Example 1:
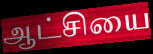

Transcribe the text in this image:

ஆட்சியை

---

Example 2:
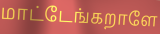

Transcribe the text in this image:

மாட்டேங்கறாளே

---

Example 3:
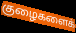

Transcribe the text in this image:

குழைகளைக்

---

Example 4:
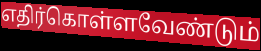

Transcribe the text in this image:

எதிர்கொள்ளவேண்டும்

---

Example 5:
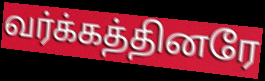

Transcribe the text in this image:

வர்க்கத்தினரே